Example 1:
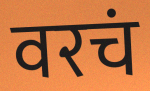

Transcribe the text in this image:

वरचं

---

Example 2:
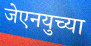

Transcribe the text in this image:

जेएनयुच्या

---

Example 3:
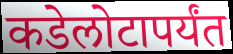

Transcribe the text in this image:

कडेलोटापर्यंत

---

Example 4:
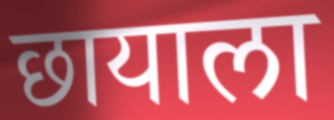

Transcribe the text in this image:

छायाला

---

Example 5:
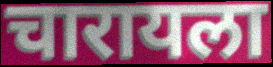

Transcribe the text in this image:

चारायला